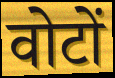
वोटों